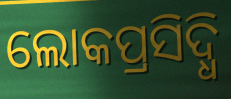
ଲୋକପ୍ରସିଦ୍ଧି